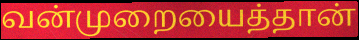
வன்முறையைத்தான்